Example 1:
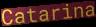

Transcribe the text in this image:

Catarina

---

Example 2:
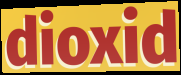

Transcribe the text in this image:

dioxid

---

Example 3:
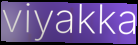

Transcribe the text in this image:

viyakka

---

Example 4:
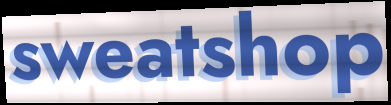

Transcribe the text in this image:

sweatshop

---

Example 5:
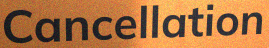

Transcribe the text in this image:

Cancellation